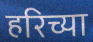
हरिच्या